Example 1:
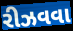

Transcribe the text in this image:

રીઝવવા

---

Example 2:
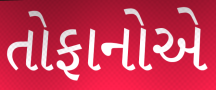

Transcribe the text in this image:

તોફાનોએ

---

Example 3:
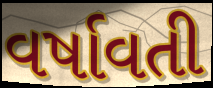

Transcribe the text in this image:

વર્ષાવતી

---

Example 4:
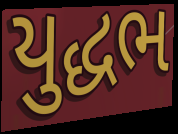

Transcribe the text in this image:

યુદ્ધભ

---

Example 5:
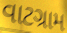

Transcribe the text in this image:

વાટગ્રામ